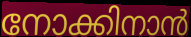
നോക്കിനാൻ